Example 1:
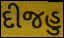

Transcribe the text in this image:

દીજહુ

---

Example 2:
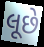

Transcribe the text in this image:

લૂછે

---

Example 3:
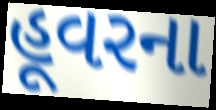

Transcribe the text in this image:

હૂવરના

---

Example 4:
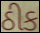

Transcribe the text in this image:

ઠીક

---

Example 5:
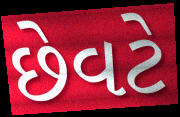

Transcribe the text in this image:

છેવટે